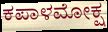
ಕಪಾಳಮೋಕ್ಷ